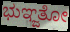
ಭುಞ್ಜತೋ